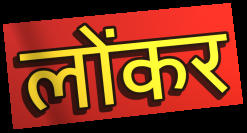
लोंकर